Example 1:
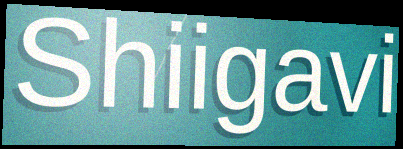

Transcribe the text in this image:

Shiigavi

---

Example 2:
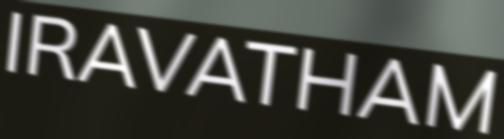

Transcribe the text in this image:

IRAVATHAM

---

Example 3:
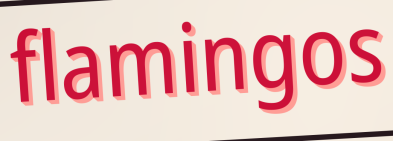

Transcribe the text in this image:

flamingos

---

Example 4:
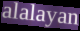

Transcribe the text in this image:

alalayan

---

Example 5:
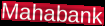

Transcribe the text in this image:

Mahabank